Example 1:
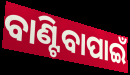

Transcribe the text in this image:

ବାଣ୍ଟିବାପାଇଁ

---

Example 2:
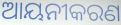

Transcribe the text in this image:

ଆୟନୀକରଣ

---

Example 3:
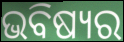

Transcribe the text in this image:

ଭବିଷ୍ୟର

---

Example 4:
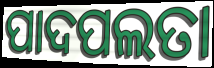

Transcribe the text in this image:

ପାଦପଲତା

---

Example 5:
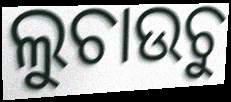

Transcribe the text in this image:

ଲୁଚାଉଚୁ